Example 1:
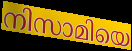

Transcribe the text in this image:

നിസാമിയെ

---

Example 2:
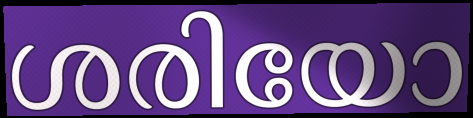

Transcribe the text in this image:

ശരിയോ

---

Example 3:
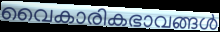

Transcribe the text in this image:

വൈകാരികഭാവങ്ങൾ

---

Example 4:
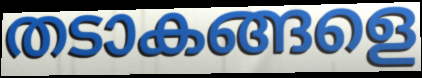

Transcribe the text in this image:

തടാകങ്ങളെ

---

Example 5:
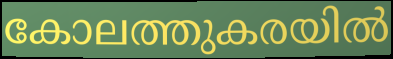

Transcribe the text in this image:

കോലത്തുകരയിൽ